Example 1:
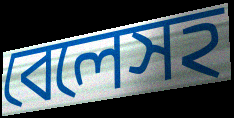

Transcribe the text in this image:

বেলেসহ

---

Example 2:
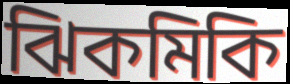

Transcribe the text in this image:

ঝিকমিকি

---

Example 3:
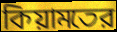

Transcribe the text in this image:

কিয়ামতের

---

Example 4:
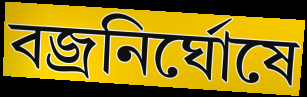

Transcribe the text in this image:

বজ্রনির্ঘোষে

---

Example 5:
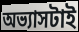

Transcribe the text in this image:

অভ্যাসটাই